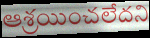
ఆశ్రయించలేదని